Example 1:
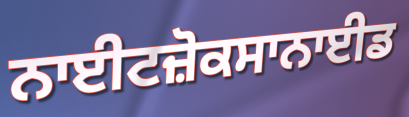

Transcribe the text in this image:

ਨਾਈਟਜ਼ੋਕਸਾਨਾਈਡ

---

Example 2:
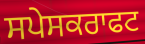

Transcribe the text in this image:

ਸਪੇਸਕਰਾਫਟ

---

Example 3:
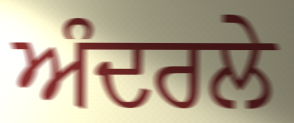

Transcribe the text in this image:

ਅੰਦਰਲੇ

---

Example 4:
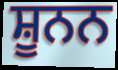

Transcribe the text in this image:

ਸ਼ੂਨਨ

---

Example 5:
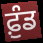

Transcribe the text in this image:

ਫ਼ੁੰਡ